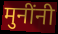
मुनींनी